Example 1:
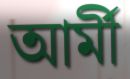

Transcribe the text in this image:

আৰ্মী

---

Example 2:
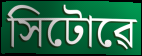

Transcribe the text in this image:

সিটোৱে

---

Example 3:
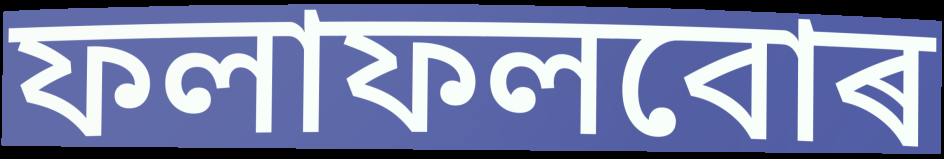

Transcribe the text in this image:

ফলাফলবোৰ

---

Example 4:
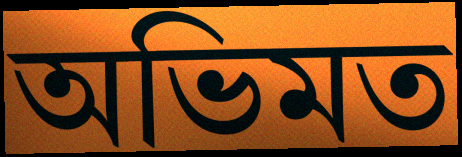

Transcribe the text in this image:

অভিমত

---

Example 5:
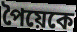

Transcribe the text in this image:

পৈয়েকে